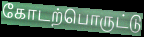
கோடற்பொருட்டு